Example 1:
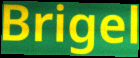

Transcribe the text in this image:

Brigel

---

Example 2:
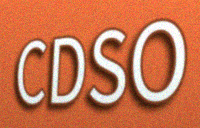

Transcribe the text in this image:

CDSO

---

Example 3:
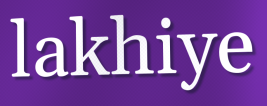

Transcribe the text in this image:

lakhiye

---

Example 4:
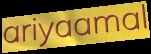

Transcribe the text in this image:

ariyaamal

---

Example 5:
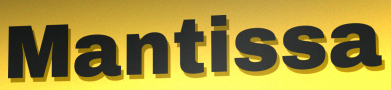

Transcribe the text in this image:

Mantissa